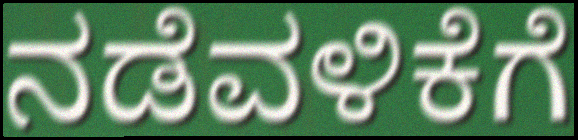
ನಡೆವಳಿಕೆಗೆ